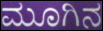
ಮೂಗಿನ